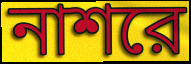
নাশরে